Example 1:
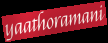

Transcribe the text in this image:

yaathoramani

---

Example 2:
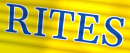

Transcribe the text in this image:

RITES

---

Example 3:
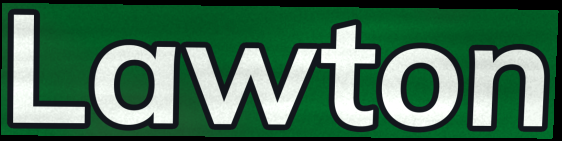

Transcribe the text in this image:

Lawton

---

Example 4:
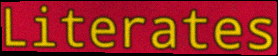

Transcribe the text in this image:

Literates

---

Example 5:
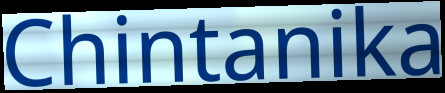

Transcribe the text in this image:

Chintanika